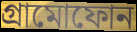
গ্ৰামোফোন